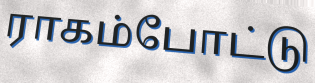
ராகம்போட்டு